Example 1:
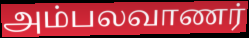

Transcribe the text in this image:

அம்பலவாணர்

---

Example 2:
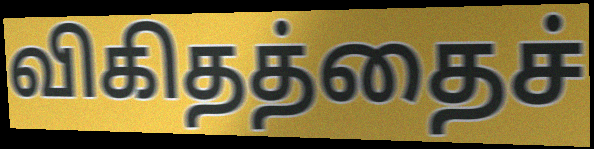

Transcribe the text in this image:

விகிதத்தைச்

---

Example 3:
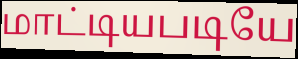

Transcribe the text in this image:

மாட்டியபடியே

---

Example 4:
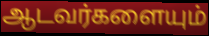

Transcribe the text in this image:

ஆடவர்களையும்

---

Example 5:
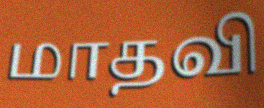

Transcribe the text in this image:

மாதவி